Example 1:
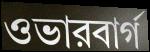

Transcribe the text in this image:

ওভারবার্গ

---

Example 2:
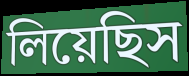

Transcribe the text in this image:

লিয়েছিস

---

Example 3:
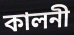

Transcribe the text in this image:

কালনী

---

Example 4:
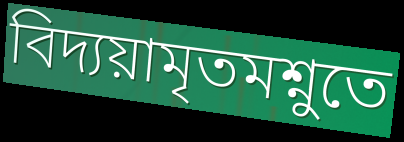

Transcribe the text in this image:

বিদ্যয়ামৃতমশ্নুতে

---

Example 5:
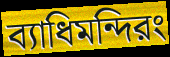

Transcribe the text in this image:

ব্যাধিমন্দিরং